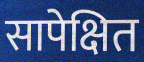
सापेक्षित